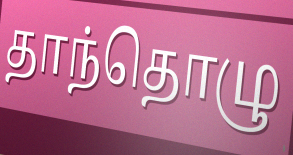
தாந்தொழு